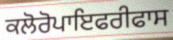
ਕਲੋਰੋਪਾਇਫਰੀਫਾਸ